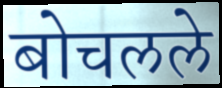
बोचलले